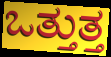
ಒತ್ತುತ್ತ